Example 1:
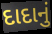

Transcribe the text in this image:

દાદાનું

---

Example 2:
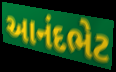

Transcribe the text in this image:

આનંદભેટ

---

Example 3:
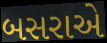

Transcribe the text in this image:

બસરાએ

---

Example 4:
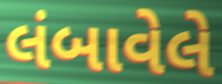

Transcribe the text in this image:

લંબાવેલે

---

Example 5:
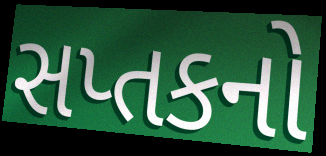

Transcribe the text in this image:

સપ્તકનો